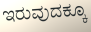
ಇರುವುದಕ್ಕೂ